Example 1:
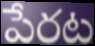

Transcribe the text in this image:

పేరట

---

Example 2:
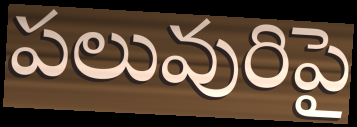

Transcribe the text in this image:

పలువురిపై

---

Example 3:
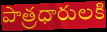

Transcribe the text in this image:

పాత్రధారులకి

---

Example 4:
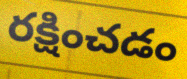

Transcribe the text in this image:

రక్షించడం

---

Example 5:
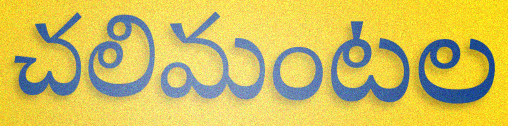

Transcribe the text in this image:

చలిమంటల